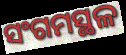
ସଂଗମସ୍ଥଳ